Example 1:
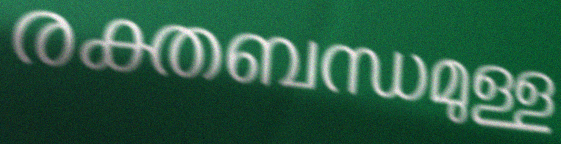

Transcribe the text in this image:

രക്തബന്ധമുള്ള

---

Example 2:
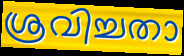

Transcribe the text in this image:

ശ്രവിച്ചതാ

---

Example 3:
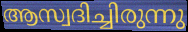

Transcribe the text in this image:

ആസ്വദിച്ചിരുന്നു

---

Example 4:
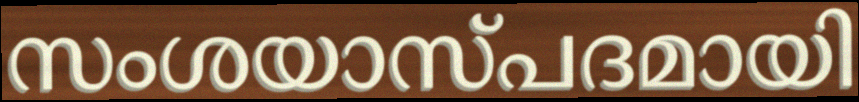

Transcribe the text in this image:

സംശയാസ്പദമായി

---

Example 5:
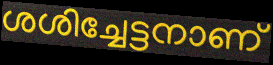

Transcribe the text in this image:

ശശിച്ചേട്ടനാണ്